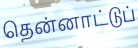
தென்னாட்டுப்